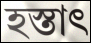
হস্তাৎ